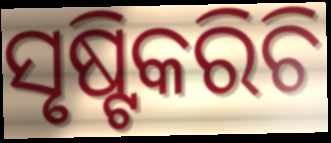
ସୃଷ୍ଟିକରିଚି